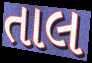
તાલ